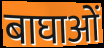
बाघाओं